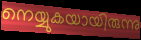
നെയ്യുകയായിരുന്നു